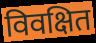
विवक्षित